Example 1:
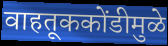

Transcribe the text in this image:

वाहतूककोंडीमुळे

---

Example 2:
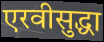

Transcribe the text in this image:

एरवीसुद्धा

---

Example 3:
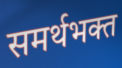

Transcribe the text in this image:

समर्थभक्त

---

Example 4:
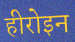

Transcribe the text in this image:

हीरोइन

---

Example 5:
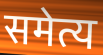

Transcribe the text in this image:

समेत्य